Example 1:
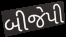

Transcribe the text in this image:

બીજેપી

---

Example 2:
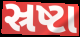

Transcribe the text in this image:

સ્રષ્ટા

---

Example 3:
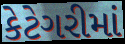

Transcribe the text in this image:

કેટેગરીમાં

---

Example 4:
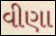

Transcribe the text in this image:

વીણા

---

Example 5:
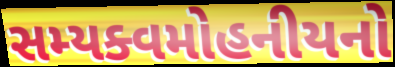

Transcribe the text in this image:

સમ્યક્વમોહનીયનો